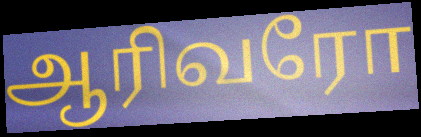
ஆரிவரோ